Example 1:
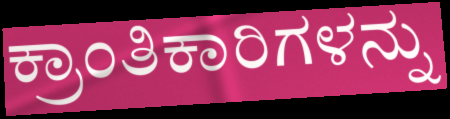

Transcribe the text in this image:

ಕ್ರಾಂತಿಕಾರಿಗಳನ್ನು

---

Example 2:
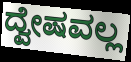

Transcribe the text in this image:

ದ್ವೇಷವಲ್ಲ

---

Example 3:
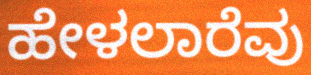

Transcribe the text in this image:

ಹೇಳಲಾರೆವು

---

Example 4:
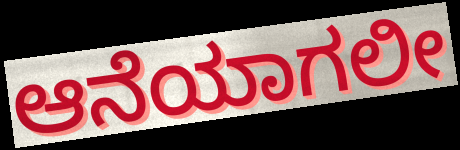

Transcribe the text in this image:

ಆನೆಯಾಗಲೀ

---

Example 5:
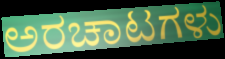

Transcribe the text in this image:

ಅರಚಾಟಗಳು